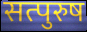
सत्पुरुष